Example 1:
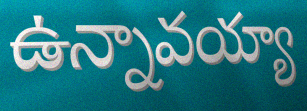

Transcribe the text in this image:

ఉన్నావయ్యా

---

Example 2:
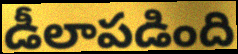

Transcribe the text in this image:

డీలాపడింది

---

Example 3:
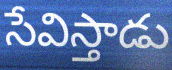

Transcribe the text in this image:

సేవిస్తాడు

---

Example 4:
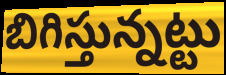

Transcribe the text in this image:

బిగిస్తున్నట్టు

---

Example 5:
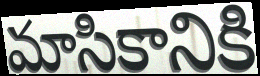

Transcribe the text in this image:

మాసికానికి